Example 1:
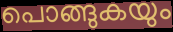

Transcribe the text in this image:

പൊങ്ങുകയും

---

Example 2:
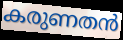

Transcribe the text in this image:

കരുണതൻ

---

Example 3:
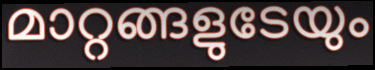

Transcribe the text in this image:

മാറ്റങ്ങളുടേയും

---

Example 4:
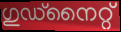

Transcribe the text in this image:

ഗുഡ്നൈറ്റ്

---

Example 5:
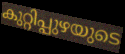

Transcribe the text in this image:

കുറ്റിപ്പുഴയുടെ